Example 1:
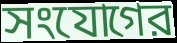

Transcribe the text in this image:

সংযোগের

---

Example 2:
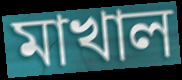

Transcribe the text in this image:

মাখাল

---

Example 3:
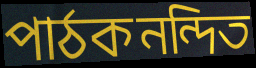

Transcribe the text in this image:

পাঠকনন্দিত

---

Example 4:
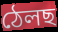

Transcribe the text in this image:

ঠেলছ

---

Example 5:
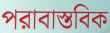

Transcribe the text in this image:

পরাবাস্তবিক